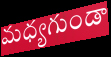
మధ్యగుండా